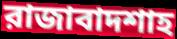
রাজাবাদশাহ